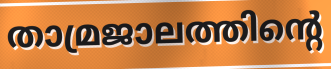
താമ്രജാലത്തിന്റെ